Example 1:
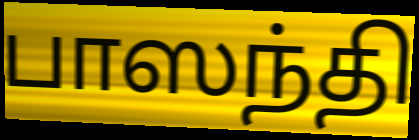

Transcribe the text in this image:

பாஸந்தி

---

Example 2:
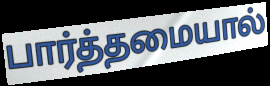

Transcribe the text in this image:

பார்த்தமையால்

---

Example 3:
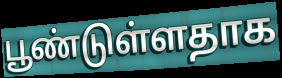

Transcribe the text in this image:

பூண்டுள்ளதாக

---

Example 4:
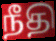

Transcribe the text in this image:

நீதி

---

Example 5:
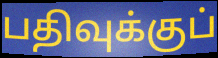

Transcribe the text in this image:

பதிவுக்குப்